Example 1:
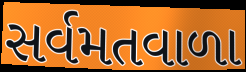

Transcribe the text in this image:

સર્વમતવાળા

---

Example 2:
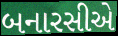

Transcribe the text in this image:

બનારસીએ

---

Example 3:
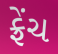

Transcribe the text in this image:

ફ્રેંચ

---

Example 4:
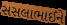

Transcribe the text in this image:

સસલાભાઈને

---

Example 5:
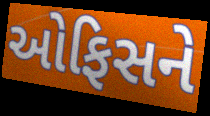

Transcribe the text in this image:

ઓફિસને